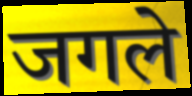
जगले